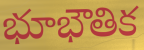
భూభౌతిక